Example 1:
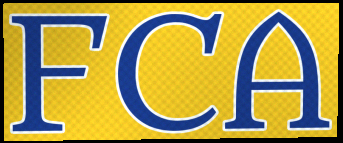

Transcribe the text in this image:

FCA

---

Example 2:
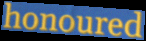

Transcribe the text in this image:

honoured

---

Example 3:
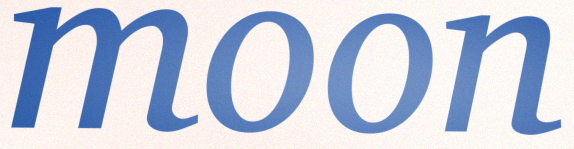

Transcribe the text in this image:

moon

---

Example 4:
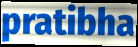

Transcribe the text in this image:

pratibha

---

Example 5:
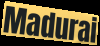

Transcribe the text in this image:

Madurai